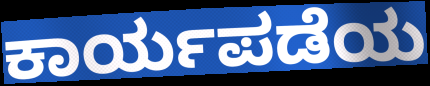
ಕಾರ್ಯಪಡೆಯ